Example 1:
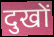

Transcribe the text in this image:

दुखों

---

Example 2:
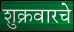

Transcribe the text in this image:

शुक्रवारचे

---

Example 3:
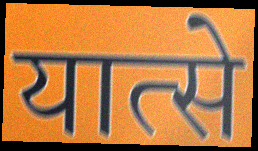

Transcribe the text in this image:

यात्से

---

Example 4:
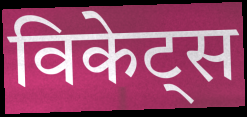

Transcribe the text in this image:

विकेट्स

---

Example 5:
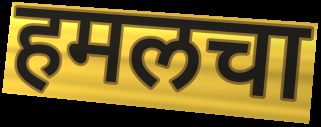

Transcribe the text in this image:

हमलचा